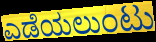
ಎಡೆಯಲುಂಟು